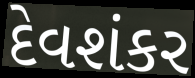
દેવશંકર